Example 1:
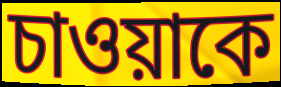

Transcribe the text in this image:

চাওয়াকে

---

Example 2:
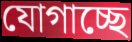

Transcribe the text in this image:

যোগাচ্ছে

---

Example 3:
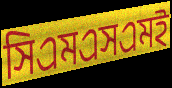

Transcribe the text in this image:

সিএমএসএমই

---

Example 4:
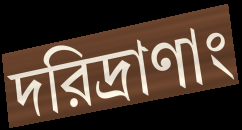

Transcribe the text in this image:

দরিদ্রাণাং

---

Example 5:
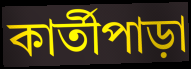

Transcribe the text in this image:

কার্তীপাড়া